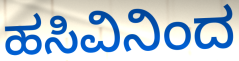
ಹಸಿವಿನಿಂದ